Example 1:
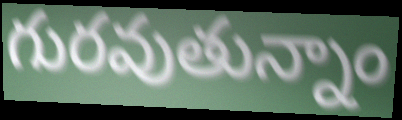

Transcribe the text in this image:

గురవుతున్నాం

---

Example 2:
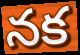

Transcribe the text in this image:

నక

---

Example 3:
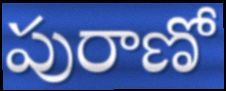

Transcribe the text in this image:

పురాణో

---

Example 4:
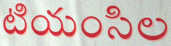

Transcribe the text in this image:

టియంసిల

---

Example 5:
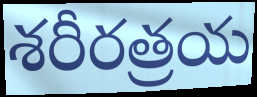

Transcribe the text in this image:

శరీరత్రయ